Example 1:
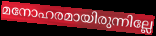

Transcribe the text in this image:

മനോഹരമായിരുന്നില്ലേ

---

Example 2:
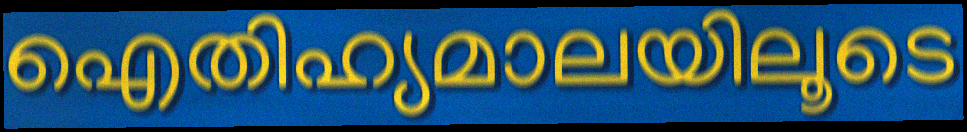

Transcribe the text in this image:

ഐതിഹ്യമാലയിലൂടെ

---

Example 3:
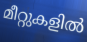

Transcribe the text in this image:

മീറ്റുകളിൽ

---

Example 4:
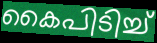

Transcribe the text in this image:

കൈപിടിച്ച്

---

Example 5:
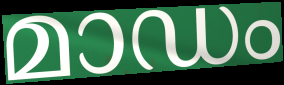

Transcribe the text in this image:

മാഡം